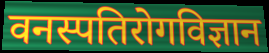
वनस्पतिरोगविज्ञान